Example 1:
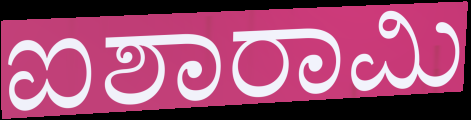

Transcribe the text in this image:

ಐಶಾರಾಮಿ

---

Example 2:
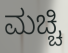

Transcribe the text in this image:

ಮಚ್ಚಿ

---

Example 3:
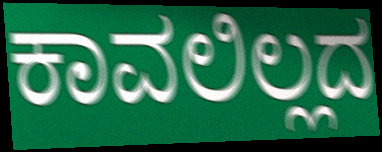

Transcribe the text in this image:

ಕಾವಲಿಲ್ಲದ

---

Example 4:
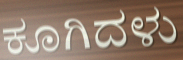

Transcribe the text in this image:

ಕೂಗಿದಳು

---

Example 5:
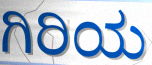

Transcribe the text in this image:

ಗಿರಿಯ